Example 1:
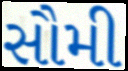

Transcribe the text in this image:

સૌમી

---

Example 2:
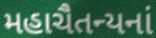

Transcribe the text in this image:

મહાચૈતન્યનાં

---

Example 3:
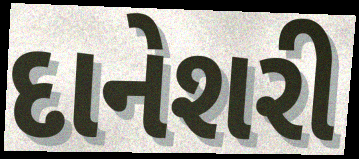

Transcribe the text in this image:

દાનેશરી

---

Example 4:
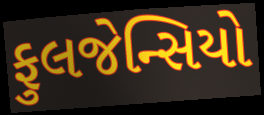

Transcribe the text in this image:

ફુલજેન્સિયો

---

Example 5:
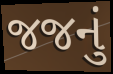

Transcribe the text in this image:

જજનું